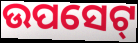
ଉପସେଟ୍